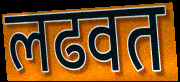
लढवत